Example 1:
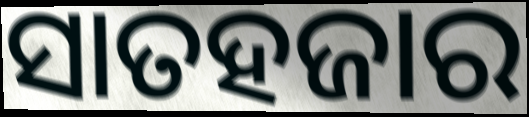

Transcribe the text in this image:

ସାତହଜାର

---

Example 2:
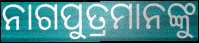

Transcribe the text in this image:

ନାଗପୁତ୍ରମାନଙ୍କୁ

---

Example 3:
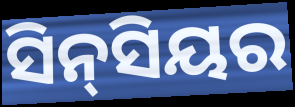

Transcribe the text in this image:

ସିନ୍‌ସିୟର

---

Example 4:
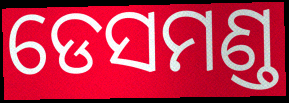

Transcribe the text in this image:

ଡେସମଣ୍ଡ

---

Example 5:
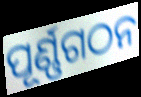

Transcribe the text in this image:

ପୂର୍ଣ୍ଣଗଠନ